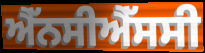
ਐੱਨਸੀਐੱਸਸੀ